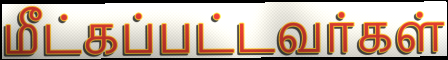
மீட்கப்பட்டவர்கள்